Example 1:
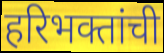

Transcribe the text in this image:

हरिभक्तांची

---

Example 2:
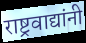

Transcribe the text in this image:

राष्ट्रवाद्यांनी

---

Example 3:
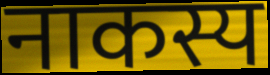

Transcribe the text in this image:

नाकस्य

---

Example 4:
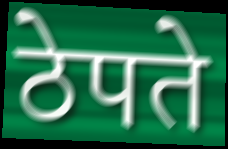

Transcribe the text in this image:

ठेपते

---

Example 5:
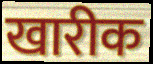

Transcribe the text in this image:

खारीक